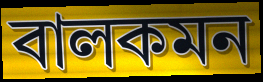
বালকমন